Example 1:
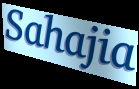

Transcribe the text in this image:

Sahajia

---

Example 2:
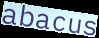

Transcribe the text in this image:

abacus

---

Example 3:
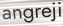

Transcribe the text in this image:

angreji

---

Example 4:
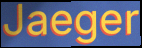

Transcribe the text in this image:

Jaeger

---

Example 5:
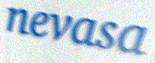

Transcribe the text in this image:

nevasa